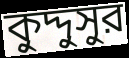
কুদ্দুসুর